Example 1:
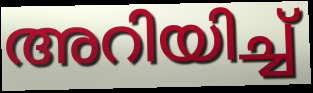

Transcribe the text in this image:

അറിയിച്ച്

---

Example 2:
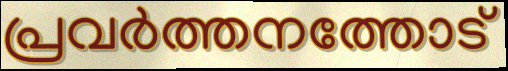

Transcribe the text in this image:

പ്രവർത്തനത്തോട്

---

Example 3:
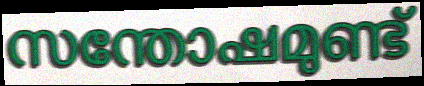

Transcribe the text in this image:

സന്തോഷമുണ്ട്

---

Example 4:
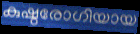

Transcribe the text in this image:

കുഷ്ഠരോഗിയായ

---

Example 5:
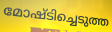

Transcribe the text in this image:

മോഷ്ടിച്ചെടുത്ത